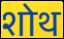
शोथ